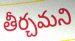
తీర్చమని